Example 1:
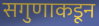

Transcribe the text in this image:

सगुणाकडून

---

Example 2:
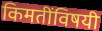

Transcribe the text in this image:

किमतींविषयी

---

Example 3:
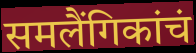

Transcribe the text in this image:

समलैंगिकांचं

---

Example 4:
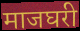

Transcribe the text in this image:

माजघरी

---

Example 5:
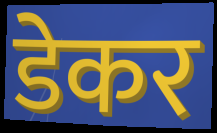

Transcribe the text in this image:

डेकर